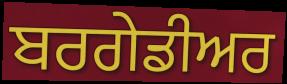
ਬਰਗੇਡੀਅਰ